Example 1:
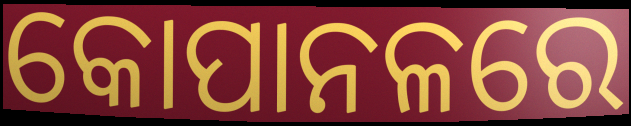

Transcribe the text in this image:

କୋପାନଳରେ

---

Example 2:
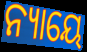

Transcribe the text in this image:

ନ୍ୟାୟେ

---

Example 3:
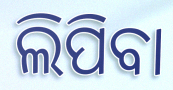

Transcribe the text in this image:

ଲିପିବା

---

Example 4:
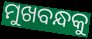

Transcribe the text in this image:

ମୁଖବନ୍ଧକୁ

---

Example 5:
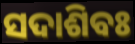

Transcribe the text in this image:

ସଦାଶିବଃ